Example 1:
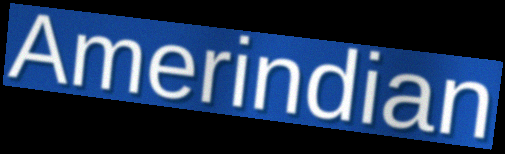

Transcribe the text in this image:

Amerindian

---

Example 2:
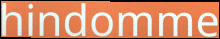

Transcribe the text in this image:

hindomme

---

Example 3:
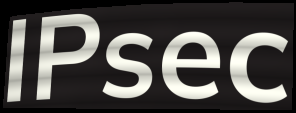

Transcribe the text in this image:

IPsec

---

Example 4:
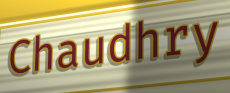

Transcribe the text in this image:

Chaudhry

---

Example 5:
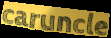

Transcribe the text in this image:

caruncle